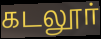
கடலூர்